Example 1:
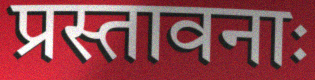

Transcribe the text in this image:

प्रस्तावनाः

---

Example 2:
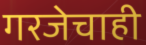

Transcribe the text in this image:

गरजेचाही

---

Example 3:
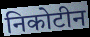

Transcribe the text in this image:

निकोटीन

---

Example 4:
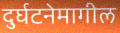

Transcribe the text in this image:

दुर्घटनेमागील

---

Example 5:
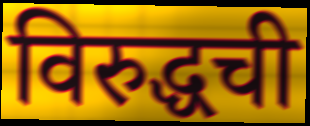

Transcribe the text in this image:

विरुद्धची